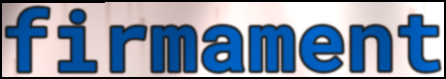
firmament